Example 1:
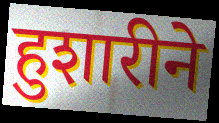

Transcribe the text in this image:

हुशारीने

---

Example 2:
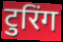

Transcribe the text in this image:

टुरिंग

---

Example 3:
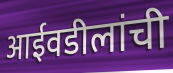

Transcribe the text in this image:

आईवडीलांची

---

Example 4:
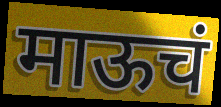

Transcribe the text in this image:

माऊचं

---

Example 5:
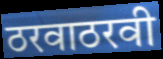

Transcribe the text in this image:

ठरवाठरवी